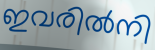
ഇവരിൽനി